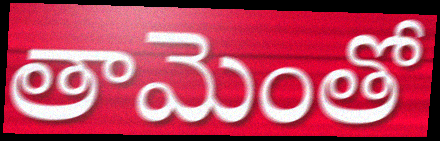
తామెంతో